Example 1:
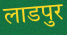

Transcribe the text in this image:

लाडपुर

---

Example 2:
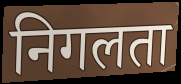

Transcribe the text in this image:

निगलता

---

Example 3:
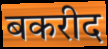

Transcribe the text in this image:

बकरीद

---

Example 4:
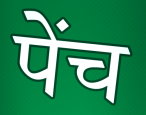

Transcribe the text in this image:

पेंच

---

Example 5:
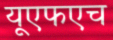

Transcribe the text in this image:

यूएफएच